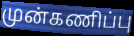
முன்கணிப்பு